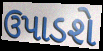
ઉપાડશે